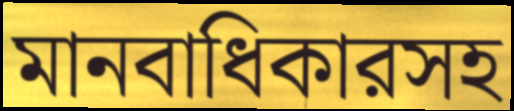
মানবাধিকারসহ